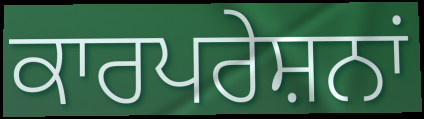
ਕਾਰਪਰੇਸ਼ਨਾਂ